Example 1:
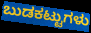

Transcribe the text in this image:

ಬುಡಕಟ್ಟುಗಳು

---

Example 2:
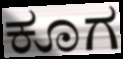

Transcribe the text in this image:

ಕೂಗ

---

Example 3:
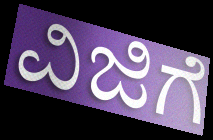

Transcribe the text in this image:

ವಿಜಿಗೆ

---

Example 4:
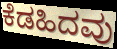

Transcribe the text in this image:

ಕೆಡಹಿದವು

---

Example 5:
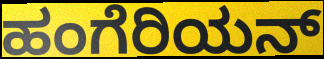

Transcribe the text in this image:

ಹಂಗೆರಿಯನ್